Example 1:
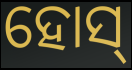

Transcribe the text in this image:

ହୋସ୍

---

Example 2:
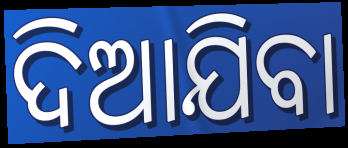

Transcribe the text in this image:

ଦିଆଯିବା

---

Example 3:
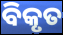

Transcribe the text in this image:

ବିକୃତ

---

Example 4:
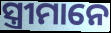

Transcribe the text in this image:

ସ୍ତ୍ରୀମାନେ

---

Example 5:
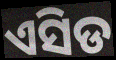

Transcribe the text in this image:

ଏସିଡ